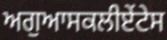
ਅਗੁਆਸਕਲੀਏਂਟੇਸ